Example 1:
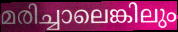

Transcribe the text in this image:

മരിച്ചാലെങ്കിലും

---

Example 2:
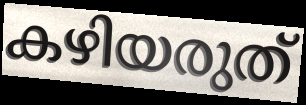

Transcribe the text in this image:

കഴിയരുത്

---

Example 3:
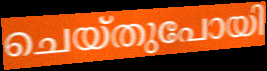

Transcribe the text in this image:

ചെയ്തുപോയി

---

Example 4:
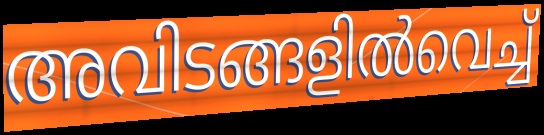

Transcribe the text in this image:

അവിടങ്ങളിൽവെച്ച്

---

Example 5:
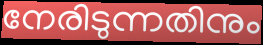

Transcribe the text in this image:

നേരിടുന്നതിനും